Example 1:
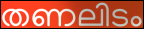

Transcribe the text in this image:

തണലിടം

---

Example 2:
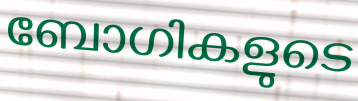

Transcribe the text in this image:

ബോഗികളുടെ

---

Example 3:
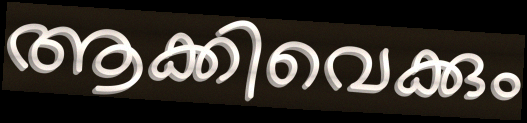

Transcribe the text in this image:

ആക്കിവെക്കും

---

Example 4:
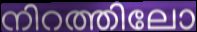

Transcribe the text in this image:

നിറത്തിലോ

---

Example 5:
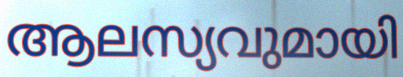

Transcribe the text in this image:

ആലസ്യവുമായി